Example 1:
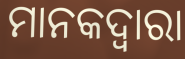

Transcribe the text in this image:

ମାନକଦ୍ୱାରା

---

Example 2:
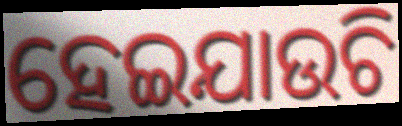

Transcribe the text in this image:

ହେଇଯାଉଚି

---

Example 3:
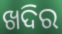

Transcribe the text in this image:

ଖଦିର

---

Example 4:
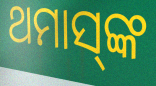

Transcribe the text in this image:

ଥମାସ୍‌ଙ୍କ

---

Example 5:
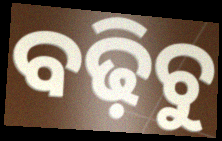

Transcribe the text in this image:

ବଢ଼ିଚୁ